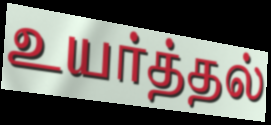
உயர்த்தல்